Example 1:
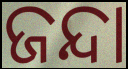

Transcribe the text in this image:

ଜନ୍ଦା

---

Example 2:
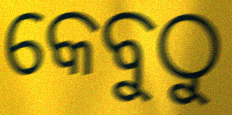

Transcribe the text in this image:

କେବୁଠୁ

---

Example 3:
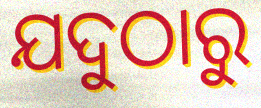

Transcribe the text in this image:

ଯଦୁଠାରୁ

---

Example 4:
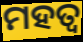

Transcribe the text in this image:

ମହତ୍ବ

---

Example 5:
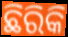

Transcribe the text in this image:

ଛିରିକି